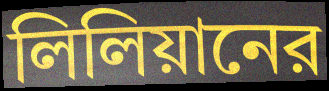
লিলিয়ানের